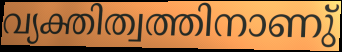
വ്യക്തിത്വത്തിനാണു്